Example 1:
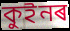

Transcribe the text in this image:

কুইনৰ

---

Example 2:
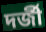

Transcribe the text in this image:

দৰ্জী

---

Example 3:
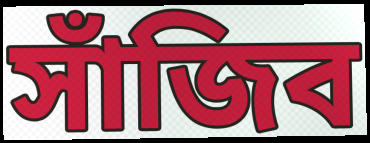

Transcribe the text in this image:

সাঁজিব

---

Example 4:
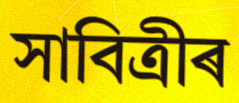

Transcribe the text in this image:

সাবিত্ৰীৰ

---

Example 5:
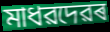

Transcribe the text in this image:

মাধৱদেৱৰ